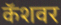
कॅशवर